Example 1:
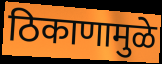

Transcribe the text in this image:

ठिकाणामुळे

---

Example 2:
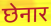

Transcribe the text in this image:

छेनार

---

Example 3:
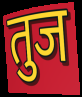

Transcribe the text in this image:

तुज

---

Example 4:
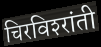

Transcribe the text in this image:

चिरविश्रांती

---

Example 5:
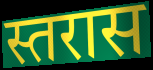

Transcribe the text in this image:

स्तरास